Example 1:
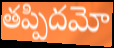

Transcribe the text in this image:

తప్పిదమో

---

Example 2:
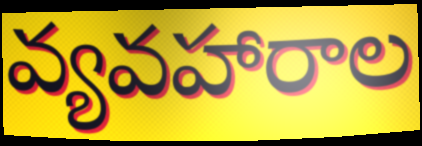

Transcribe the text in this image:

వ్యవహారాల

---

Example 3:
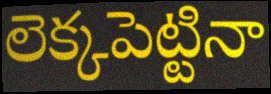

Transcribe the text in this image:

లెక్కపెట్టినా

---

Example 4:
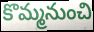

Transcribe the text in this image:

కొమ్మనుంచి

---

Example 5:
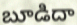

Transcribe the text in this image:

బూడిదా